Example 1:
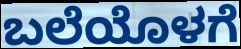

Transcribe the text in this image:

ಬಲೆಯೊಳಗೆ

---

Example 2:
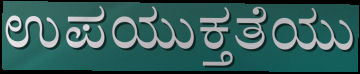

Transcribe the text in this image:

ಉಪಯುಕ್ತತೆಯು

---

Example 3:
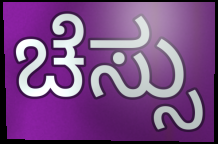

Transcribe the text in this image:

ಚೆಸ್ಸು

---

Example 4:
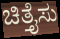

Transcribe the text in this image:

ಚಿತ್ತೈಸು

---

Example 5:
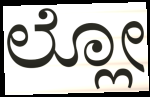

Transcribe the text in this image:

ಲ್ಲೋ